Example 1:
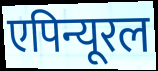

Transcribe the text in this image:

एपिन्यूरल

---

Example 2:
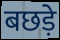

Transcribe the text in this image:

बछड़े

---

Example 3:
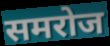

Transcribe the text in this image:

समरोज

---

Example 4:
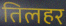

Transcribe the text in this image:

तिलहर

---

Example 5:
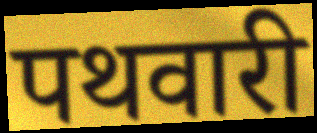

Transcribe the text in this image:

पथवारी